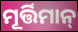
ମୂର୍ତ୍ତିମାନ୍